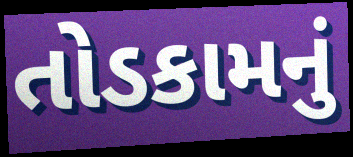
તોડકામનું